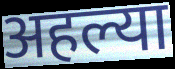
अहल्या